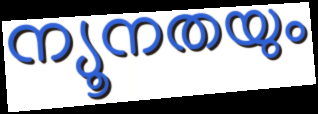
ന്യൂനതയും